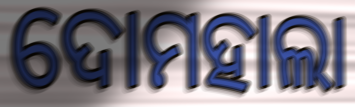
ଦୋମହାଲା